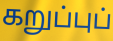
கறுப்புப்